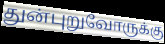
துன்புறுவோருக்கு